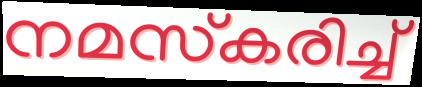
നമസ്‌കരിച്ച്